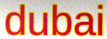
dubai